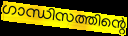
ഗാന്ധിസത്തിന്റെ